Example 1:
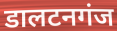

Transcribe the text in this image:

डालटनगंज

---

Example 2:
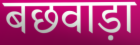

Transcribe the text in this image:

बछवाड़ा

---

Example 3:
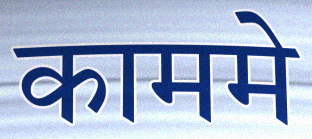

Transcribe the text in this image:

काममे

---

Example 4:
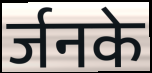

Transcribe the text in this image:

र्जनके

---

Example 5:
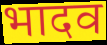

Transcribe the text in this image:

भादव